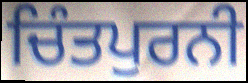
ਚਿੰਤਪੁਰਨੀ